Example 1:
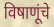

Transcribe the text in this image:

विषाणूंचे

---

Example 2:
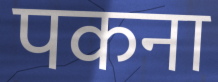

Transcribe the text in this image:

पकना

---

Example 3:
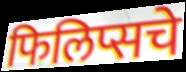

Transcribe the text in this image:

फिलिप्सचे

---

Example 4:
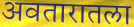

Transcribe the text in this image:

अवतारातला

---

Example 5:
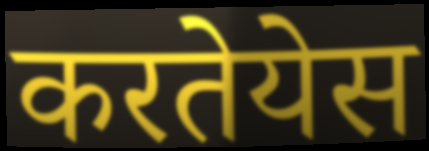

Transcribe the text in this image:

करतेयेस